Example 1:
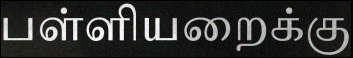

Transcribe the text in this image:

பள்ளியறைக்கு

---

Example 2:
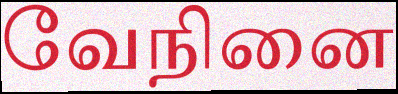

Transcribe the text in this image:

வேநினை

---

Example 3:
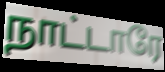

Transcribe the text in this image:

நாட்டாரே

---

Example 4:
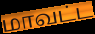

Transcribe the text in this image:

மாவட்ட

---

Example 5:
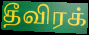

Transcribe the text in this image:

தீவிரக்